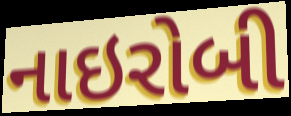
નાઇરોબી